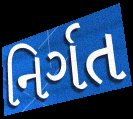
નિર્ગત